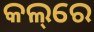
କଲ୍‌ରେ